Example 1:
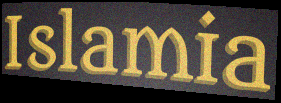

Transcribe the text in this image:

Islamia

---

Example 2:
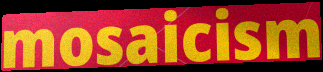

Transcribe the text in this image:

mosaicism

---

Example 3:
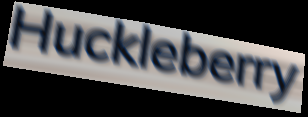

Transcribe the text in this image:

Huckleberry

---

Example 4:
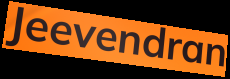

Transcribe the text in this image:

Jeevendran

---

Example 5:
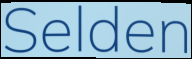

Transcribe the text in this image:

Selden